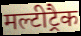
मल्टीट्रैक